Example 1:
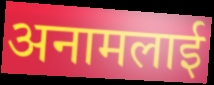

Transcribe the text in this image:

अनामलाई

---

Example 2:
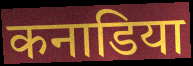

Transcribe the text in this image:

कनाडिया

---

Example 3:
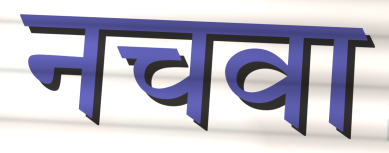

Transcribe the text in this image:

नचवा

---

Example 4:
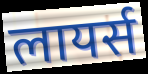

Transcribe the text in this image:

लायर्स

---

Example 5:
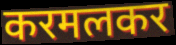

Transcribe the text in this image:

करमलकर